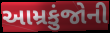
આમ્રકુંજોની